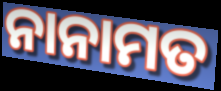
ନାନାମତ